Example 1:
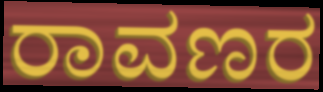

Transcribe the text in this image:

ರಾವಣರ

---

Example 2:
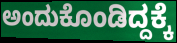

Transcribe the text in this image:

ಅಂದುಕೊಂಡಿದ್ದಕ್ಕೆ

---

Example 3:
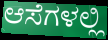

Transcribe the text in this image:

ಆಸೆಗಳಲ್ಲಿ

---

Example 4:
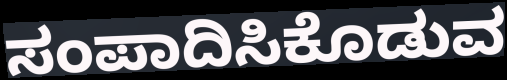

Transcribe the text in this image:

ಸಂಪಾದಿಸಿಕೊಡುವ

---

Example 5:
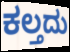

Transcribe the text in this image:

ಕಲ್ತದು